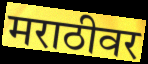
मराठीवर